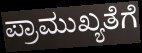
ಪ್ರಾಮುಖ್ಯತೆಗೆ